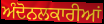
ਅੰਦੋਨਲਕਾਰੀਆਂ